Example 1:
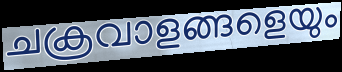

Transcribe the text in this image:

ചക്രവാളങ്ങളെയും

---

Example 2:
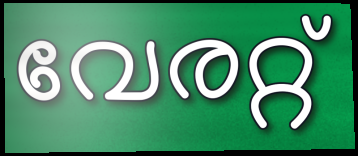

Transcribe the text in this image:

വേരറ്റ്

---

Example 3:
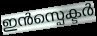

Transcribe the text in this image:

ഇൻസ്പെക്ടർ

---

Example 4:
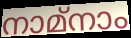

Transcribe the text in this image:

നാമ്നാം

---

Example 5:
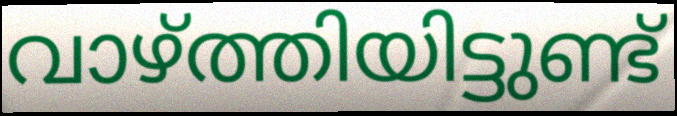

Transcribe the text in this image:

വാഴ്ത്തിയിട്ടുണ്ട്